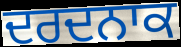
ਦਰਦਨਾਕ